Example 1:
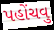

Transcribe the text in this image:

પહોંચવુ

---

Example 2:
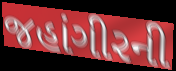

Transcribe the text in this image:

જહાંગીરની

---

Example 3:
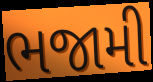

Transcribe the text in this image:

ભજામી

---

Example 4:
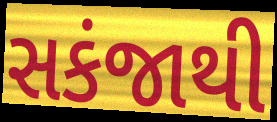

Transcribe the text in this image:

સકંજાથી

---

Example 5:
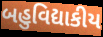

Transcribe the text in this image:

બહુવિદ્યાકીય